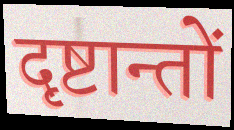
दृष्टान्तों